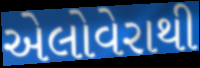
એલોવેરાથી